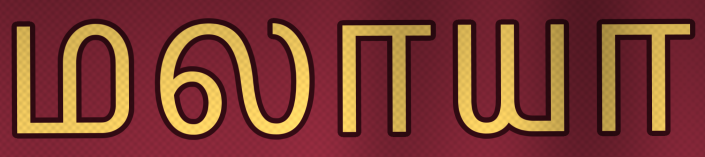
மலாயா